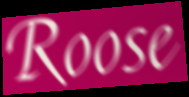
Roose